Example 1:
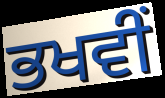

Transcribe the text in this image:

ਭਖਵੀਂ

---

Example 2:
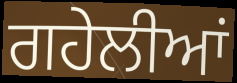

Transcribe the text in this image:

ਗਹੇਲੀਆਂ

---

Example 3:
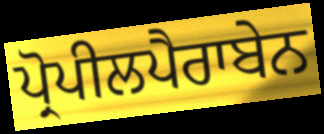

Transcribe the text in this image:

ਪ੍ਰੋਪੀਲਪੈਰਾਬੇਨ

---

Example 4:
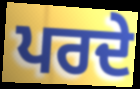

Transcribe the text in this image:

ਪਰਦੇ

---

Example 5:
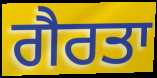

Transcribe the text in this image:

ਗੈਰਤਾ